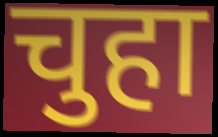
चुहा